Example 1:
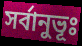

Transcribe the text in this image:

সর্বানুভূঃ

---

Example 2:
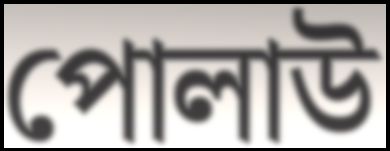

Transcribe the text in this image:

পোলাউ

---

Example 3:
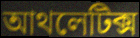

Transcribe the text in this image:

আথলেটিক্স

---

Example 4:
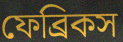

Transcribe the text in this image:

ফেব্রিকস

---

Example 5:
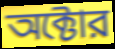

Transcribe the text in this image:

অক্টোর